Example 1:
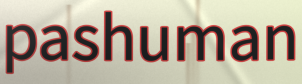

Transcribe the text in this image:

pashuman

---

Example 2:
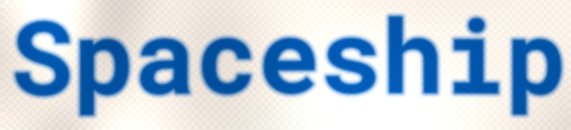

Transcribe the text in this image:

Spaceship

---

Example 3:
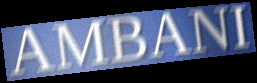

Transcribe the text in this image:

AMBANI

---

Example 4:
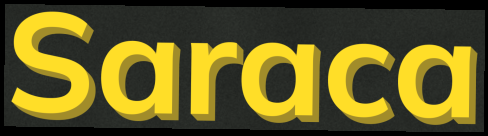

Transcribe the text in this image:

Saraca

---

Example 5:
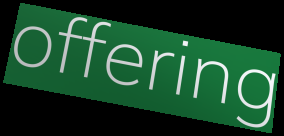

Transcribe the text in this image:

offering